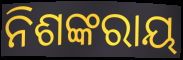
ନିଶଙ୍କରାୟ